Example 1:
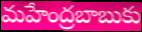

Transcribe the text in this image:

మహేంద్రబాబుకు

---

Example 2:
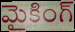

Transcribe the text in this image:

మైకింగ్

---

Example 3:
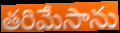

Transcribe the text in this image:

తరిమేసాను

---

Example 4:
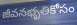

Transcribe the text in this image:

జీవనభృతికోసం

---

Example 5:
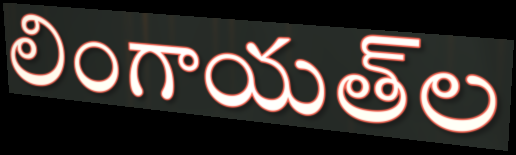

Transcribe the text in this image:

లింగాయత్‌ల